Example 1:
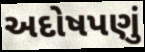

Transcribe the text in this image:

અદોષપણું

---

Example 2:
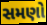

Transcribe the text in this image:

સમણો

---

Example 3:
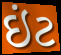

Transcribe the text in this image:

ઇંટ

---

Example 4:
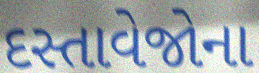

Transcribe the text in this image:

દસ્તાવેજોના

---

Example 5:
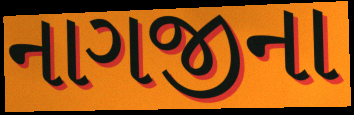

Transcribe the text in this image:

નાગજીના